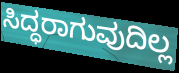
ಸಿದ್ಧರಾಗುವುದಿಲ್ಲ